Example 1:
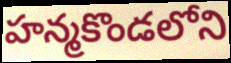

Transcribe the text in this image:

హన్మకొండలోని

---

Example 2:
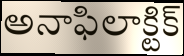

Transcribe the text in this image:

అనాఫిలాక్టిక్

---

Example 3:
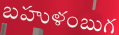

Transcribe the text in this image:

బహుళంబుగ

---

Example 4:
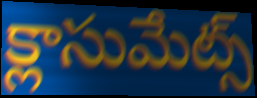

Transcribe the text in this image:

క్లాసుమేట్స్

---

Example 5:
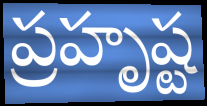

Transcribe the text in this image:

ప్రహృష్ట